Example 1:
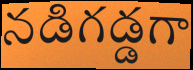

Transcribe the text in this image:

నడిగడ్డగా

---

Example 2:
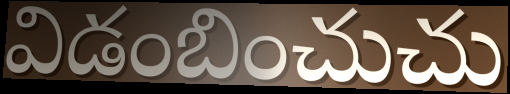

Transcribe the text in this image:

విడంబించుచు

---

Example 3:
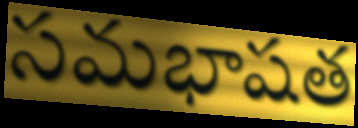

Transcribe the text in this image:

సమభాషత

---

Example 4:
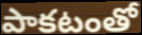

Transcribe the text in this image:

పాకటంతో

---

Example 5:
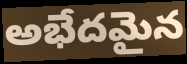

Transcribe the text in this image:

అభేదమైన